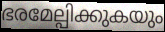
ഭരമേല്പിക്കുകയും